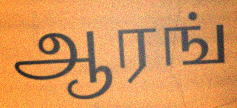
ஆரங்